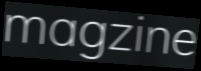
magzine